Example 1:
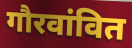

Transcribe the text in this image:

गौरवांवित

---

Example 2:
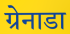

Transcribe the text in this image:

ग्रेनाडा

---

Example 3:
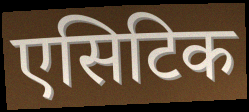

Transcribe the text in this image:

एसिटिक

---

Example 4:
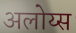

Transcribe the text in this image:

अलोय्स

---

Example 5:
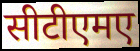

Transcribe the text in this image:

सीटीएमए